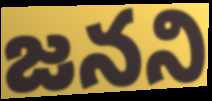
జనని